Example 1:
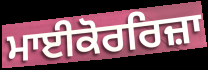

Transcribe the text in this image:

ਮਾਈਕੋਰਰਿਜ਼ਾ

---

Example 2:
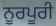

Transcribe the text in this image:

ਨੂਰਪੂਰੀ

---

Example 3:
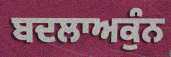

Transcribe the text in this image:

ਬਦਲਾਅਕੁੰਨ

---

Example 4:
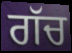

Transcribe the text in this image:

ਗੱਚ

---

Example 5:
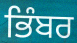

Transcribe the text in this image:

ਭਿੰਬਰ